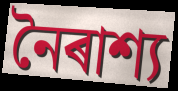
নৈৰাশ্য